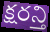
క్షరన్తి